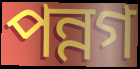
পন্নগ